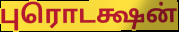
புரொடக்ஷன்